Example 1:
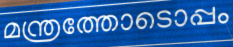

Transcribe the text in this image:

മന്ത്രത്തോടൊപ്പം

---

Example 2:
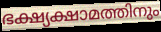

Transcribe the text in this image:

ഭക്ഷ്യക്ഷാമത്തിനും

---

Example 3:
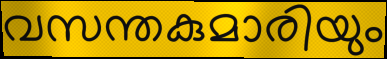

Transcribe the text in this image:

വസന്തകുമാരിയും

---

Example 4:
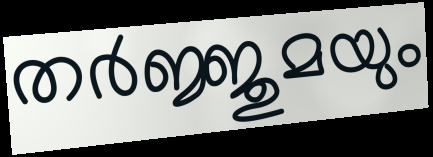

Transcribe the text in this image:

തർജ്ജുമയും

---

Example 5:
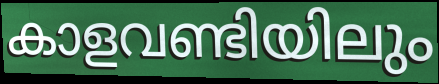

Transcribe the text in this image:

കാളവണ്ടിയിലും